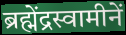
ब्रह्मेंद्रस्वामीनें